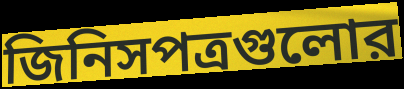
জিনিসপত্রগুলোর